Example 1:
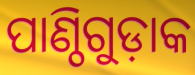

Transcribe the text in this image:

ପାଣ୍ଠିଗୁଡ଼ାକ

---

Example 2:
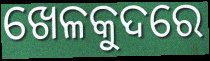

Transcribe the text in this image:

ଖେଳକୁଦରେ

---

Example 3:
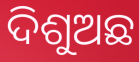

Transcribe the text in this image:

ଦିଶୁଅଛ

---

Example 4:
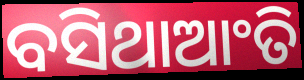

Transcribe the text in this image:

ବସିଥାଆଂତି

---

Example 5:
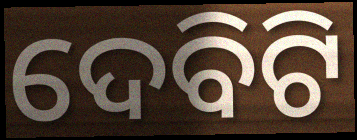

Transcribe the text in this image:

ଦେବିଟି